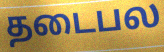
தடைபல